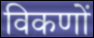
विकणों